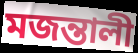
মজন্তালী